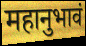
महानुभावं